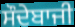
ਸੌਦੇਬਾਜੀ